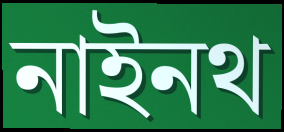
নাইনথ